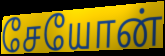
சேயோன்